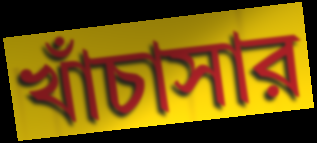
খাঁচাসার